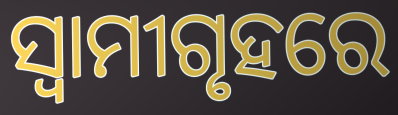
ସ୍ଵାମୀଗୃହରେ